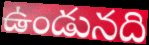
ఉండునది